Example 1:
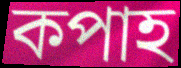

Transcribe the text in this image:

কপাহ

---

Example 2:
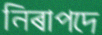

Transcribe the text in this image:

নিৰাপদে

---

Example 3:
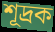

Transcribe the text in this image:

শূদ্ৰক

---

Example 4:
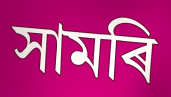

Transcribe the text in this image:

সামৰি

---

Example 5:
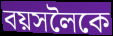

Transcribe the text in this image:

বয়সলৈকে